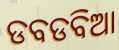
ଡବଡବିଆ